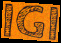
IGI